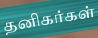
தனிகர்கள்